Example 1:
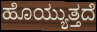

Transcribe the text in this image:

ಹೊಯ್ಯುತ್ತದೆ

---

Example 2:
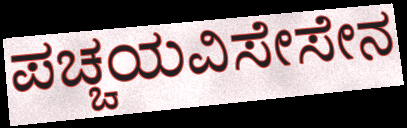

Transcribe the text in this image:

ಪಚ್ಚಯವಿಸೇಸೇನ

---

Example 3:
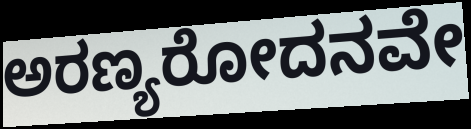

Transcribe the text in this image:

ಅರಣ್ಯರೋದನವೇ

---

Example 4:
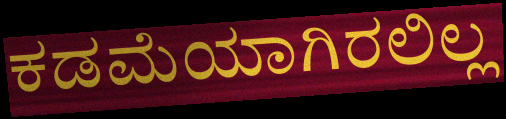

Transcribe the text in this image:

ಕಡಮೆಯಾಗಿರಲಿಲ್ಲ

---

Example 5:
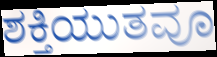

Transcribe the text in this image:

ಶಕ್ತಿಯುತವೂ